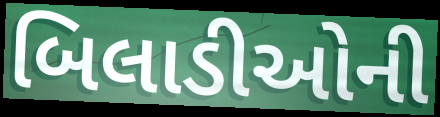
બિલાડીઓની